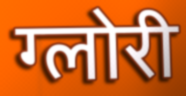
ग्लोरी